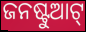
ଜନଷ୍ଟୁଆଟ୍